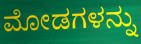
ಮೋಡಗಳನ್ನು